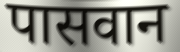
पासवान